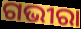
ଗଭୀରା